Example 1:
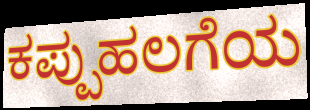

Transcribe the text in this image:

ಕಪ್ಪುಹಲಗೆಯ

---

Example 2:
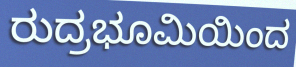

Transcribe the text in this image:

ರುದ್ರಭೂಮಿಯಿಂದ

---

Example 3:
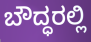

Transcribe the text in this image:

ಬೌದ್ಧರಲ್ಲಿ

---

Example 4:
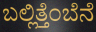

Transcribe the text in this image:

ಬಲ್ಲಿತ್ತೆಂಬೆನೆ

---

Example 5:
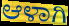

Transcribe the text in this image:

ಆಳಾಗಿ